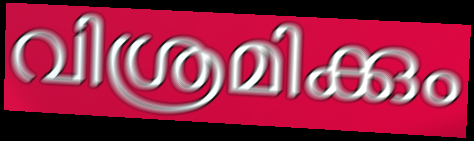
വിശ്രമിക്കും